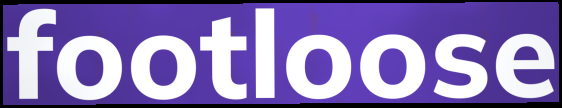
footloose